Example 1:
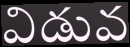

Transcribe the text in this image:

విడువ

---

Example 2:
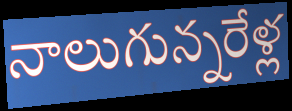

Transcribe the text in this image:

నాలుగున్నరేళ్ల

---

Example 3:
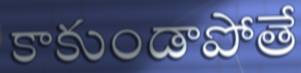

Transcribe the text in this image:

కాకుండాపోతే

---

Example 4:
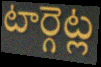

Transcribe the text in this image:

టార్గెట్ల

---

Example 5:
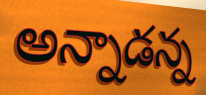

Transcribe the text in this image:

అన్నాడన్న